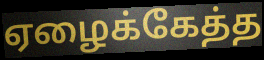
ஏழைக்கேத்த